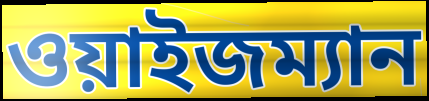
ওয়াইজম্যান